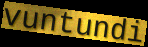
vuntundi